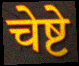
चेष्टे